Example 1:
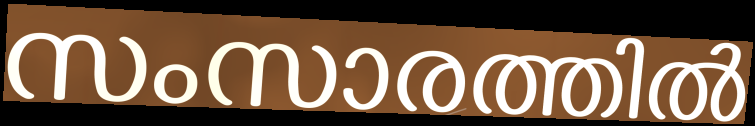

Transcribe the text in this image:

സംസാരത്തിൽ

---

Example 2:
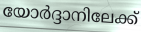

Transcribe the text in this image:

യോർദ്ദാനിലേക്ക്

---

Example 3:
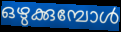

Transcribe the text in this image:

ഒഴുക്കുമ്പോൾ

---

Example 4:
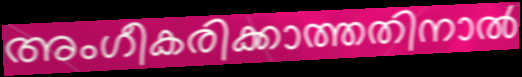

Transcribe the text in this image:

അംഗീകരിക്കാത്തതിനാൽ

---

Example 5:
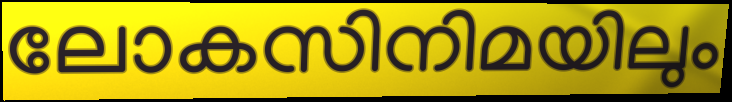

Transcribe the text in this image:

ലോകസിനിമയിലും